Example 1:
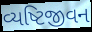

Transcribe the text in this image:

વ્યષ્ટિજીવન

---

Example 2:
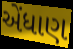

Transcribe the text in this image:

એંધાણ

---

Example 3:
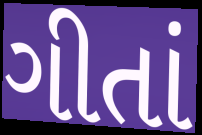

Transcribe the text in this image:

ગીતાં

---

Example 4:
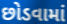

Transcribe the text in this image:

છોડવામાં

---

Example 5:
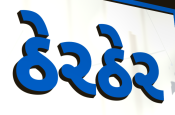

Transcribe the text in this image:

ઠેરઠેર